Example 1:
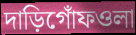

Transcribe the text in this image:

দাড়িগোঁফওলা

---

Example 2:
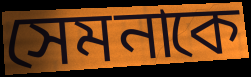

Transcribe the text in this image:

সেমনাকে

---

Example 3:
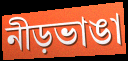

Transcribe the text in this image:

নীড়ভাঙা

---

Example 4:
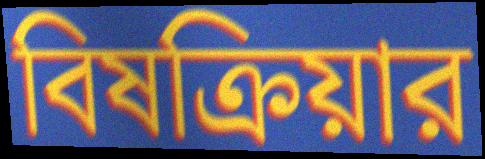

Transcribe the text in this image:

বিষক্রিয়ার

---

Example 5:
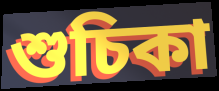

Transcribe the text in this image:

শুচিকা